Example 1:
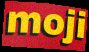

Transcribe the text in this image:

moji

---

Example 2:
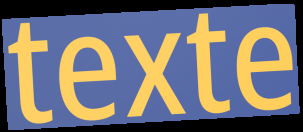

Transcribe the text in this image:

texte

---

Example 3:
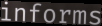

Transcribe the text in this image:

informs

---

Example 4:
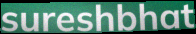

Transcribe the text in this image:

sureshbhat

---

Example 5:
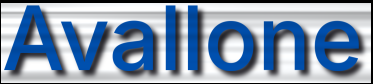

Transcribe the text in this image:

Avallone